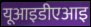
यूआइडीएआइ